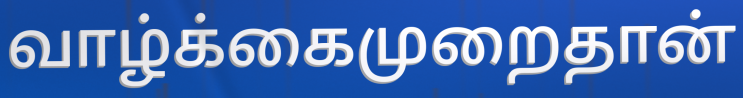
வாழ்க்கைமுறைதான்